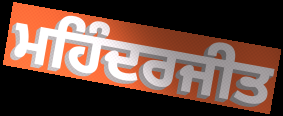
ਮਹਿੰਦਰਜੀਤ